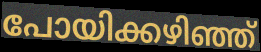
പോയിക്കഴിഞ്ഞ്